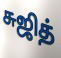
சுஜித்